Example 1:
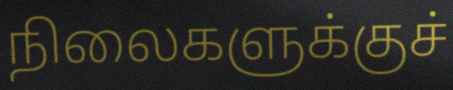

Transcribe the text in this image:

நிலைகளுக்குச்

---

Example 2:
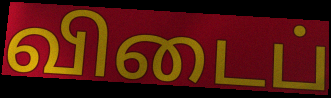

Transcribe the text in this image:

விடைப்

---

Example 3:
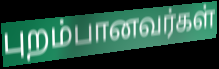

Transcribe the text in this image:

புறம்பானவர்கள்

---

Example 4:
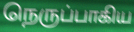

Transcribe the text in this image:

நெருப்பாகிய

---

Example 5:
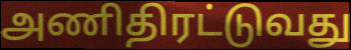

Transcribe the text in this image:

அணிதிரட்டுவது